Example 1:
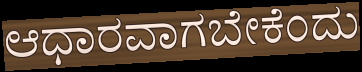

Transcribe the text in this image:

ಆಧಾರವಾಗಬೇಕೆಂದು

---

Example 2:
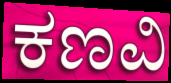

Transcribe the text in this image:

ಕಣವಿ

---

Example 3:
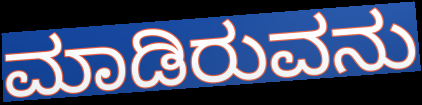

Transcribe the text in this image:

ಮಾಡಿರುವನು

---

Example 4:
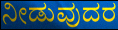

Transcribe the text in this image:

ನೀಡುವುದರ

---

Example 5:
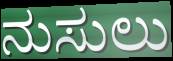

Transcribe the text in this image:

ನುಸುಲು